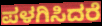
ಪಳಗಿಸಿದರೆ